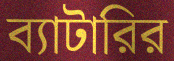
ব্যাটারির